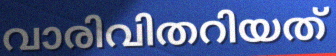
വാരിവിതറിയത്